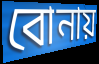
বোনায়